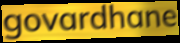
govardhane